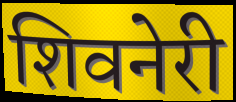
शिवनेरी